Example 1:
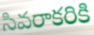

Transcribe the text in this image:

సివరాకరికి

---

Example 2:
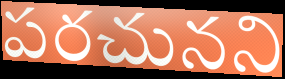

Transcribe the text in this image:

పరచునని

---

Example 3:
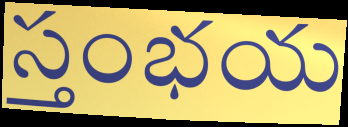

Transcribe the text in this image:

స్తంభయ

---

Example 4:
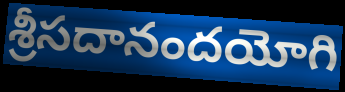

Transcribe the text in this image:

శ్రీసదానందయోగి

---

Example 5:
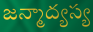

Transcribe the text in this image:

జన్మాద్యస్య